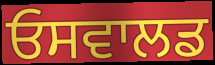
ਓਸਵਾਲਡ